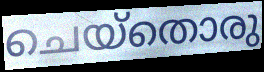
ചെയ്തൊരു